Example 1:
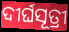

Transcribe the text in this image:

ଦୀର୍ଘସୂତ୍ରୀ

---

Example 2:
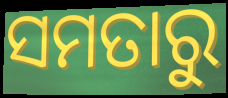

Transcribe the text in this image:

ସମତାରୁ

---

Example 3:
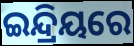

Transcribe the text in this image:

ଇନ୍ଦ୍ରିୟରେ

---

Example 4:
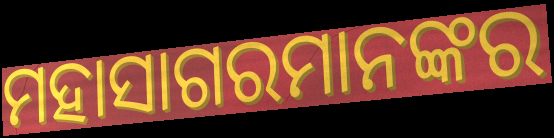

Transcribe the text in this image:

ମହାସାଗରମାନଙ୍କର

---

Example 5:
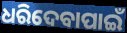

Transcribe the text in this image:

ଧରିଦେବାପାଇଁ